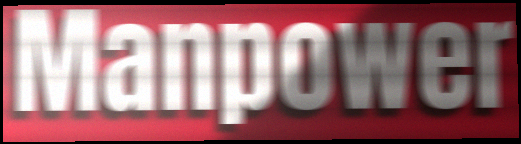
Manpower